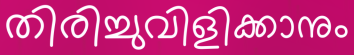
തിരിച്ചുവിളിക്കാനും